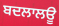
ਬਦਲਾਲਊ